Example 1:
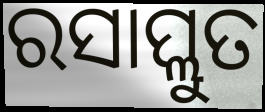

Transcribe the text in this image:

ରସାପ୍ଲୁତ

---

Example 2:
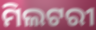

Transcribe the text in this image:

ମିଲଟରୀ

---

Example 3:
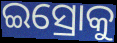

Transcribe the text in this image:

ଇସ୍ରୋକୁ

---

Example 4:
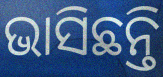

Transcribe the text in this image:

ଭାସିଛନ୍ତି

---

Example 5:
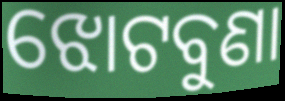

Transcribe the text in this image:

ଝୋଟବୁଣା